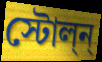
স্টোল্ন্